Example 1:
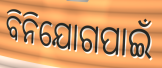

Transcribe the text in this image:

ବିନିଯୋଗପାଇଁ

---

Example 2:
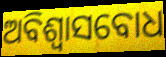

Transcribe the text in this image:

ଅବିଶ୍ୱାସବୋଧ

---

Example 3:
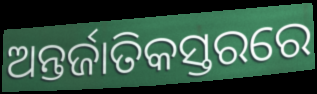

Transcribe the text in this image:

ଅନ୍ତର୍ଜାତିକସ୍ତରରେ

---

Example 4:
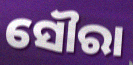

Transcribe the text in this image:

ସୌରା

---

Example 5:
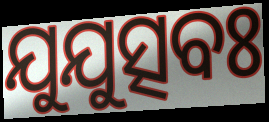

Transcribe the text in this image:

ଯୁଯୁତ୍ସବଃ